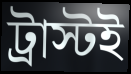
ট্রাস্টই